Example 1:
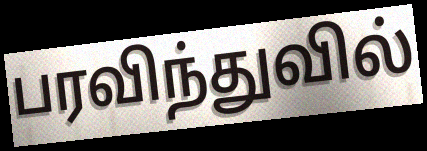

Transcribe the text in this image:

பரவிந்துவில்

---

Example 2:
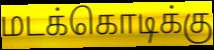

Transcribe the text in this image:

மடக்கொடிக்கு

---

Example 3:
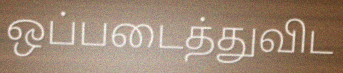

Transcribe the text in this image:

ஒப்படைத்துவிட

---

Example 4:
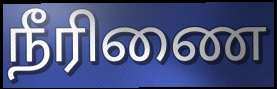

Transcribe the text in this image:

நீரிணை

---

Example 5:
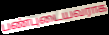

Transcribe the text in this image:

பண்புடையவராக